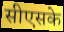
सीएसके